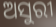
ଅସୁରୀ